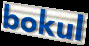
bokul